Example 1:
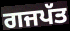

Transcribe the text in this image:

ਗਜਪੱਤ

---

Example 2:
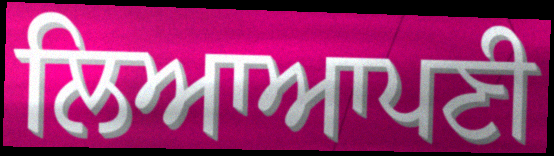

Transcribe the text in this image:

ਲਿਆਆਪਣੀ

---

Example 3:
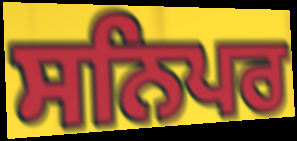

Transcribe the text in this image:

ਸਨਿਪਰ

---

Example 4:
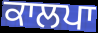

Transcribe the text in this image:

ਕਾਲਪਾ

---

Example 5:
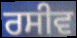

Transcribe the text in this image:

ਰਸੀਵ